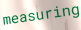
measuring